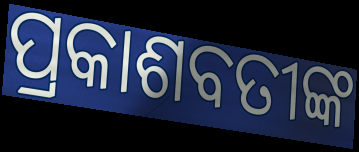
ପ୍ରକାଶବତୀଙ୍କ